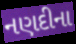
નણદીના